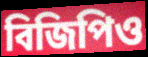
বিজিপিও